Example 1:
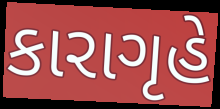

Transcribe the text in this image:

કારાગૃહે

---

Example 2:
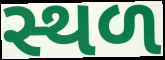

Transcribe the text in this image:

સ્થળ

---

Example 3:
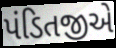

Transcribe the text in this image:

પંડિતજીએ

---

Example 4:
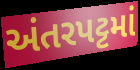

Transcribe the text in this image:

અંતરપટ્ટમાં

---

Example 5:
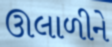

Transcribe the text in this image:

ઊલાળીને